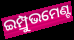
ଇମ୍ପ୍ରୁଭମେଣ୍ଟ